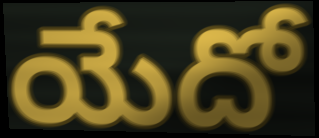
యేదో